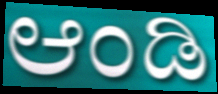
ಆಂಡಿ